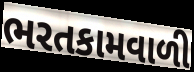
ભરતકામવાળી